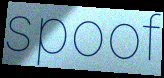
spoof